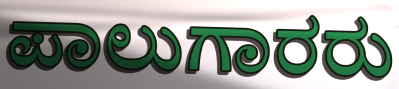
ಪಾಲುಗಾರರು